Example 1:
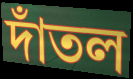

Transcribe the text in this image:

দাঁতল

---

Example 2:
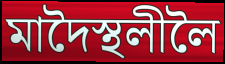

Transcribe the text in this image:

মাদৈস্থলীলৈ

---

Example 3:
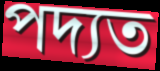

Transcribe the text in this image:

পদ্যত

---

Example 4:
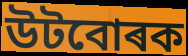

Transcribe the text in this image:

উটবোৰক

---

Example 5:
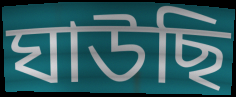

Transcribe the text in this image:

ঘাউছি